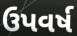
ઉપવર્ષ